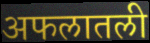
अफलातली